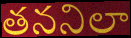
తననిలా